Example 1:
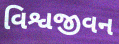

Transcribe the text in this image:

વિશ્વજીવન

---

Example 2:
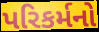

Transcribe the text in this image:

પરિકર્મનો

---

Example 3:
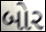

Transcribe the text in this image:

બોર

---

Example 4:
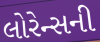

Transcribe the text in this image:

લોરેન્સની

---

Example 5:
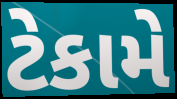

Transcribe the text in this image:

ટેકામે